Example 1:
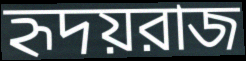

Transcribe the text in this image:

হৃদয়রাজ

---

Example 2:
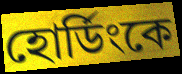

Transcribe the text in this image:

হোর্ডিংকে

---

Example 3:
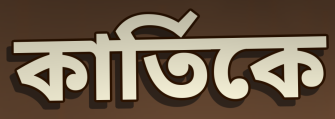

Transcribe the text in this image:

কার্তিকে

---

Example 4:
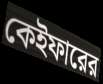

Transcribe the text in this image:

কেইফারের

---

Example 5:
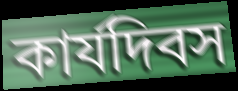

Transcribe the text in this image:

কার্যদিবস